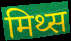
मिथ्स